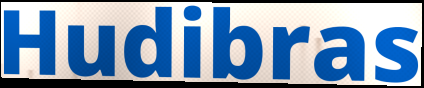
Hudibras